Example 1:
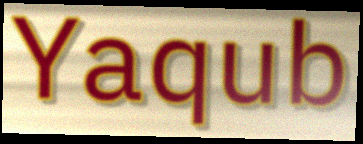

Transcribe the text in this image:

Yaqub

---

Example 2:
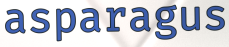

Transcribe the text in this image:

asparagus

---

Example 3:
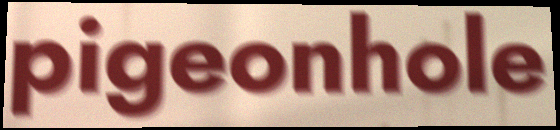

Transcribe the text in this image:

pigeonhole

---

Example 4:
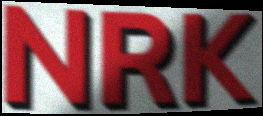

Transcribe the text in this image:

NRK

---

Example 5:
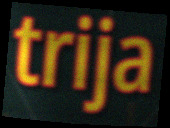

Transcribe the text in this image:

trija